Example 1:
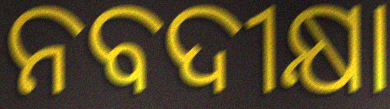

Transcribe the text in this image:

ନବଦୀକ୍ଷା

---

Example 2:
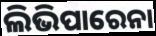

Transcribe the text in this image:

ଲିଭିପାରେନା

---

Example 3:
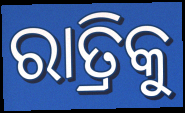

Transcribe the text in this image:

ରାତ୍ରିକୁ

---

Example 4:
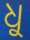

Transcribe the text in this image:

ଧୁ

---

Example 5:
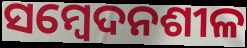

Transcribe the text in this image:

ସମ୍ବେଦନଶୀଳ